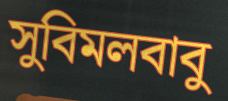
সুবিমলবাবু